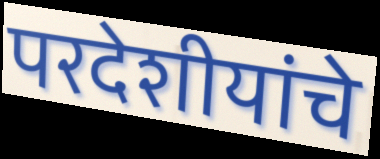
परदेशीयांचे